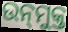
ଉନ୍‍ମୁକ୍ତ